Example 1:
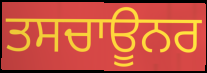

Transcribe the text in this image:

ਤਸਚਾਊਨਰ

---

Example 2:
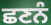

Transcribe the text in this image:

ਛਣਨੰ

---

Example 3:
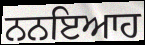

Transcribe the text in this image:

ਨਨਇਆਹ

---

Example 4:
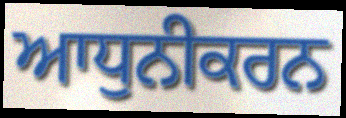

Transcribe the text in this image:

ਆਧੁਨੀਕਰਨ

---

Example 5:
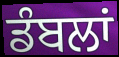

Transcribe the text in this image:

ਡੰਬਲਾਂ